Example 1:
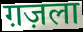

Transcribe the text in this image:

ग़ज़ला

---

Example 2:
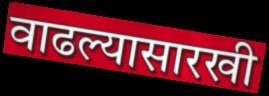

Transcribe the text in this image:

वाढल्यासारखी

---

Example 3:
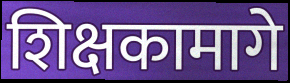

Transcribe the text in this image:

शिक्षकामागे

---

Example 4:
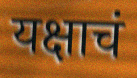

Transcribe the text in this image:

यक्षाचं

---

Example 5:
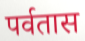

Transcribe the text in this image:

पर्वतास